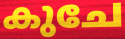
കുചേ